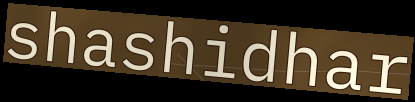
shashidhar